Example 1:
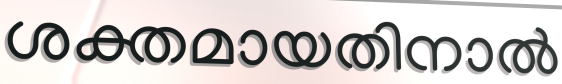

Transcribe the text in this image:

ശക്തമായതിനാൽ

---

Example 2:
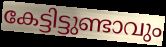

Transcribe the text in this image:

കേട്ടിട്ടുണ്ടാവും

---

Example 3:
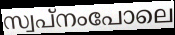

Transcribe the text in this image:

സ്വപ്നംപോലെ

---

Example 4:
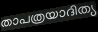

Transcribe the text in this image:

താപത്രയാദിത്യ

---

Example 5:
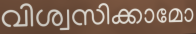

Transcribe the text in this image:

വിശ്വസിക്കാമോ